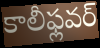
కాలీఫ్లవర్